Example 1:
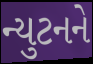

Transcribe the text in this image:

ન્યુટનને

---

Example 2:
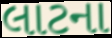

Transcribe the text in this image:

લાટના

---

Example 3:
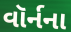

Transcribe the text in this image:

વૉર્નના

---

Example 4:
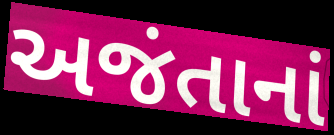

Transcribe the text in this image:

અજંતાનાં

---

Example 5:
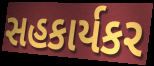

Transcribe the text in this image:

સહકાર્યકર